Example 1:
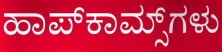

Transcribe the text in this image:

ಹಾಪ್‌ಕಾಮ್ಸ್‌ಗಳು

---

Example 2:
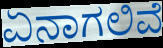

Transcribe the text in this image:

ಏನಾಗಲಿವೆ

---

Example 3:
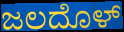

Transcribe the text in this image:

ಜಲದೊಳ್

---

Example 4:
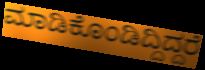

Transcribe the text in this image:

ಮಾಡಿಕೊಂಡಿದ್ದಿದ್ದರೆ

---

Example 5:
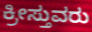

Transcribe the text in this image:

ಕ್ರೀಸ್ತುವರು